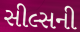
સીલ્સની